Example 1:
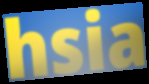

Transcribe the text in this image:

hsia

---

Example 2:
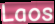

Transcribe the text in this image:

Laos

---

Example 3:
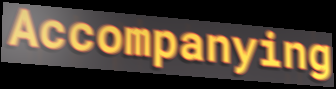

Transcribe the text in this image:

Accompanying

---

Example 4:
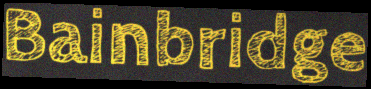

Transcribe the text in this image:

Bainbridge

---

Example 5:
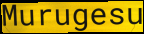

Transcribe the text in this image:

Murugesu